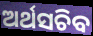
ଅର୍ଥସଚିବ